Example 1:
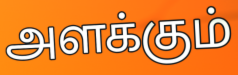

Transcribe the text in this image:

அளக்கும்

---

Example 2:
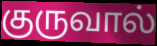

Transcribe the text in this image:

குருவால்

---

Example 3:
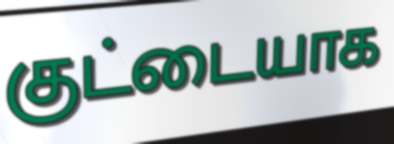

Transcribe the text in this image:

குட்டையாக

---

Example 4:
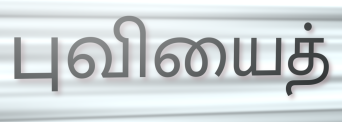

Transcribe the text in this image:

புவியைத்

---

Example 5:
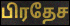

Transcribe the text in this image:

பிரதேச